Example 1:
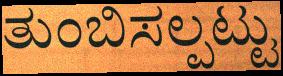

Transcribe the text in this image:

ತುಂಬಿಸಲ್ಪಟ್ಟು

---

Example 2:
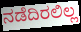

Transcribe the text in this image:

ನಡೆದಿರಲಿಲ್ಲ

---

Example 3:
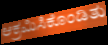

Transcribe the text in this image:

ಆಕ್ರಮಿಸಿಕೊಂಡಿತು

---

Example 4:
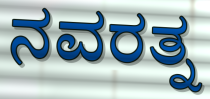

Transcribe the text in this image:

ನವರತ್ನ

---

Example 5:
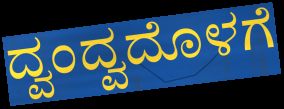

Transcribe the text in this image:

ದ್ವಂದ್ವದೊಳಗೆ